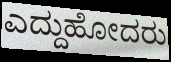
ಎದ್ದುಹೋದರು